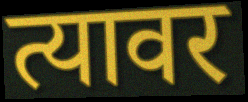
त्यावर